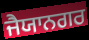
ਜੈਯਾਨਗਰ